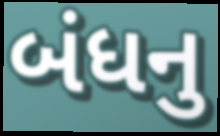
બંધનુ